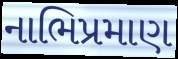
નાભિપ્રમાણ